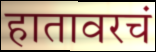
हातावरचं